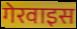
गेरवाइस